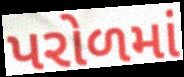
પરોળમાં